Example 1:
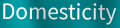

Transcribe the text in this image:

Domesticity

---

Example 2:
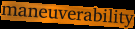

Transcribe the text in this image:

maneuverability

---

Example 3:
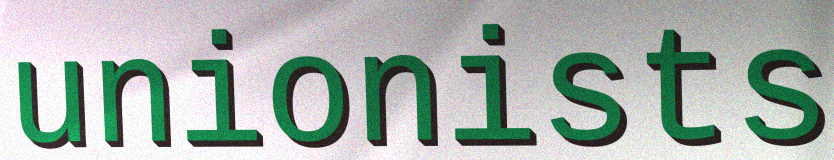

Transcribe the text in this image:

unionists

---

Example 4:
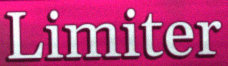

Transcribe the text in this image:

Limiter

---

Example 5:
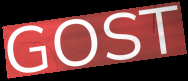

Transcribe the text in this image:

GOST